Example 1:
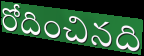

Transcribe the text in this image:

రోదించినది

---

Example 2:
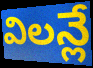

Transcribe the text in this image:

విలన్లే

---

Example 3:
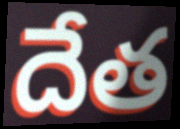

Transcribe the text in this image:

దేత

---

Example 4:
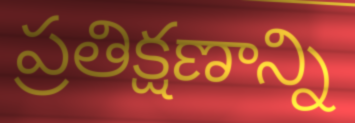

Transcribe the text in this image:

ప్రతిక్షణాన్ని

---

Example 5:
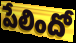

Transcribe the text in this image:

పేలిందో